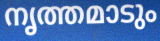
നൃത്തമാടും